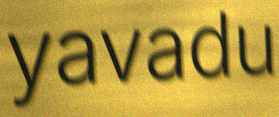
yavadu